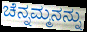
ಚೆನ್ನಮ್ಮನನ್ನು